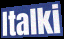
Italki